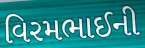
વિરમભાઈની